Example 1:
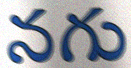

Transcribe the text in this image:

నగు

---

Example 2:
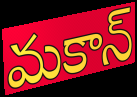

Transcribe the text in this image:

మకాన్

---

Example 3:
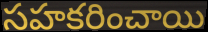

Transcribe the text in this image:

సహకరించాయి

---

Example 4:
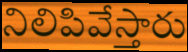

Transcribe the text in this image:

నిలిపివేస్తారు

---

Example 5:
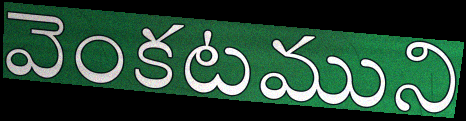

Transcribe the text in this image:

వెంకటముని